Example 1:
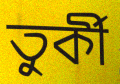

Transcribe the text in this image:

তুর্কী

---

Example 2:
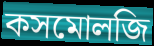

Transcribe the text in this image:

কসমোলজি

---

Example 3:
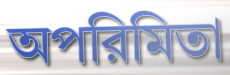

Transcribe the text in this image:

অপরিমিতা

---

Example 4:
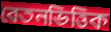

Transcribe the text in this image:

বেতনভিত্তিক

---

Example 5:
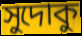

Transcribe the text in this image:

সুদোকু